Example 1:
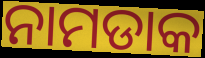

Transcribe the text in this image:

ନାମଡାକ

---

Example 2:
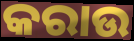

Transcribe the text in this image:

କରାଉ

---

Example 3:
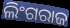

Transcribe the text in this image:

ଲିଂଗରାଜ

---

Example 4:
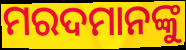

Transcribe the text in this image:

ମରଦମାନଙ୍କୁ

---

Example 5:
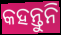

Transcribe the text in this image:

କହନ୍ତୁନି